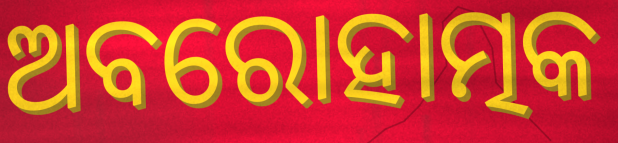
ଅବରୋହାତ୍ମକ